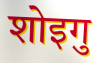
शोइगु